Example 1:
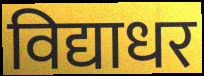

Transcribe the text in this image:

विद्याधर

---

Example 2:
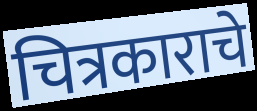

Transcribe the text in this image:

चित्रकाराचे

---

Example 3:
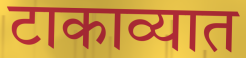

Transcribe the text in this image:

टाकाव्यात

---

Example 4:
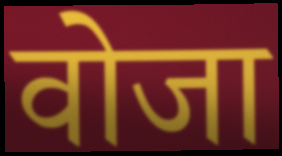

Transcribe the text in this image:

वोजा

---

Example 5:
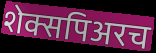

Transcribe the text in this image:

शेक्सपिअरच